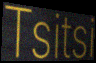
Tsitsi